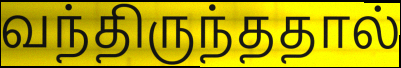
வந்திருந்ததால்